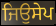
ਜਿਉਸੇਪ